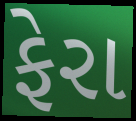
ફેરા